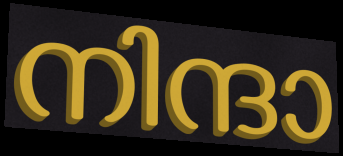
നിന്ദാ